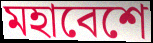
মহাবেশে